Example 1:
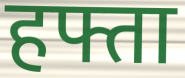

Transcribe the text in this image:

हफ्ता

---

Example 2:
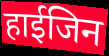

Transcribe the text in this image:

हाईजिन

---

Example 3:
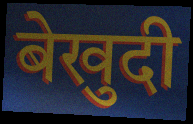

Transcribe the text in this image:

बेखुदी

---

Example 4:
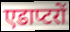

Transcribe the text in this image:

एडाप्टरों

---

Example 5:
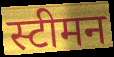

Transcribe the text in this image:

स्टीमन